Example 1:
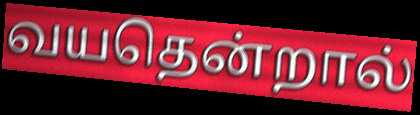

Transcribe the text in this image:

வயதென்றால்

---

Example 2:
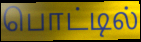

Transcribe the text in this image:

பொட்டில்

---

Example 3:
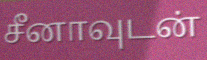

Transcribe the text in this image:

சீனாவுடன்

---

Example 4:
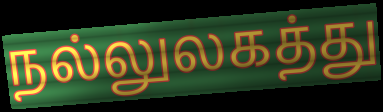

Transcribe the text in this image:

நல்லுலகத்து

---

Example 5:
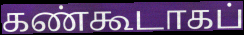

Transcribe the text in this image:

கண்கூடாகப்